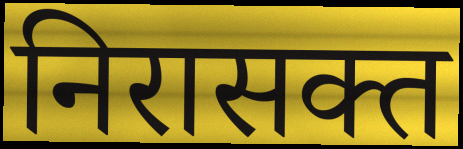
निरासक्त